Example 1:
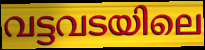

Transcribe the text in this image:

വട്ടവടയിലെ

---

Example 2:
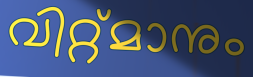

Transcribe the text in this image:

വിറ്റ്മാനും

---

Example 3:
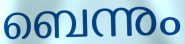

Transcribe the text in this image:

ബെന്നും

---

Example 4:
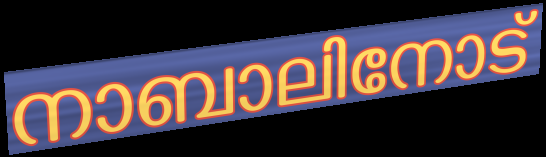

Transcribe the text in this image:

നാബാലിനോട്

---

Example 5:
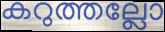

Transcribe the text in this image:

കറുത്തല്ലോ